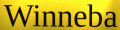
Winneba